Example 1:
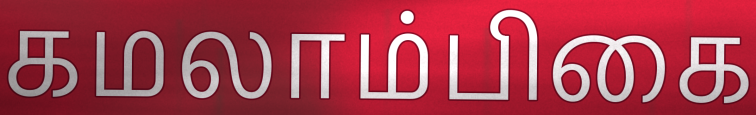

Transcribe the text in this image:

கமலாம்பிகை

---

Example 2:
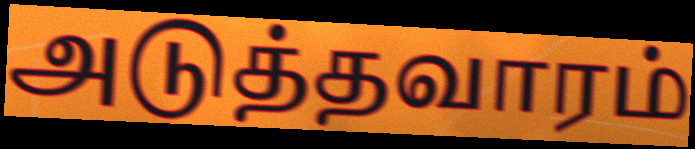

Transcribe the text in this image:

அடுத்தவாரம்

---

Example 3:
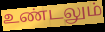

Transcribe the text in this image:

உண்டலும்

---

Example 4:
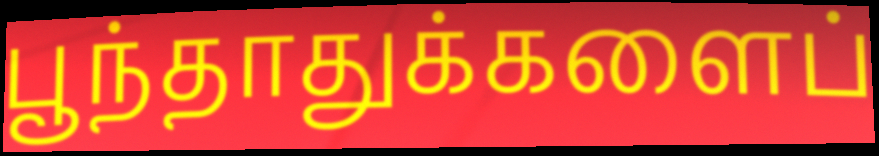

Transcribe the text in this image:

பூந்தாதுக்களைப்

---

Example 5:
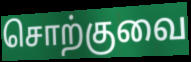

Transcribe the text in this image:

சொற்குவை